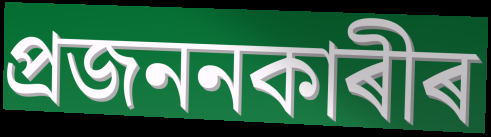
প্ৰজননকাৰীৰ